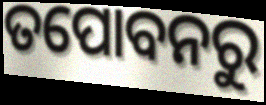
ତପୋବନରୁ